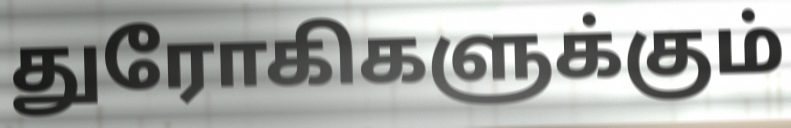
துரோகிகளுக்கும்